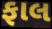
ફાલ